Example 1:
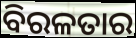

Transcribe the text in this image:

ବିରଳତାର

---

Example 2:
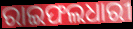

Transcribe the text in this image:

ରାଇଫଲଧାରୀ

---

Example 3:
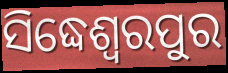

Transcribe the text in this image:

ସିଦ୍ଧେଶ୍ଵରପୁର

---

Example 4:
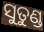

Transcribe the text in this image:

ସୁତୁଣ୍ଡ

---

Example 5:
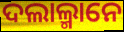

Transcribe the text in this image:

ଦଲାଲ୍ମାନେ